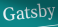
Gatsby